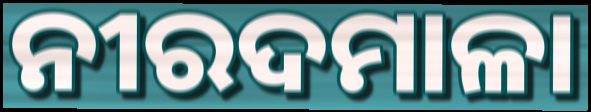
ନୀରଦମାଳା